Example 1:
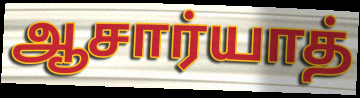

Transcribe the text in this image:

ஆசார்யாத்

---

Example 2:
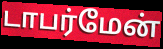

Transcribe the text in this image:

டாபர்மேன்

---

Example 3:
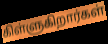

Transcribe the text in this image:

கிள்ளுகிறார்கள்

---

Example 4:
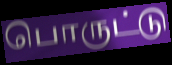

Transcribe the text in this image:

பொருட்டு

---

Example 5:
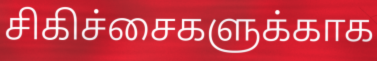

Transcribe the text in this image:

சிகிச்சைகளுக்காக